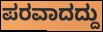
ಪರವಾದದ್ದು